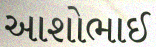
આશોભાઈ